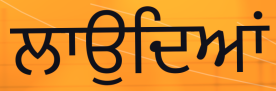
ਲਾਉਦਿਆਂ